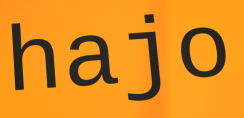
hajo